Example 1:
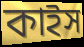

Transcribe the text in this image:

কাইস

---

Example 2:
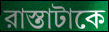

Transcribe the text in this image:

রাস্তাটাকে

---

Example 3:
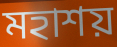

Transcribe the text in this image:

মহাশয়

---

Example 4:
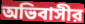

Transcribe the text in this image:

অভিবাসীর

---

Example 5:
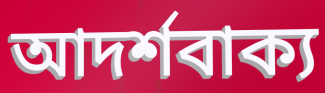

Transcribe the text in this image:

আদর্শবাক্য